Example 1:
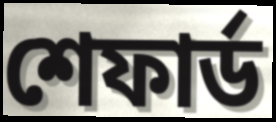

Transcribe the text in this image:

শেফার্ড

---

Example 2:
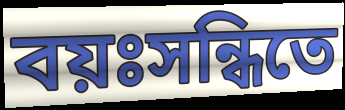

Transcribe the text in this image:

বয়ঃসন্ধিতে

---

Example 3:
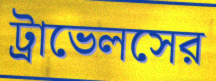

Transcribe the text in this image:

ট্রাভেলসের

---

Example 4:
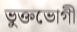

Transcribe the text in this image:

ভুক্তভোগী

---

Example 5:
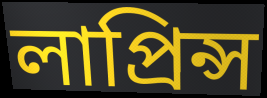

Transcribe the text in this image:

লাপ্রিন্স